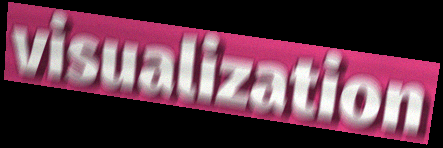
visualization